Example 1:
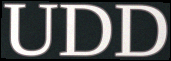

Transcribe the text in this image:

UDD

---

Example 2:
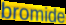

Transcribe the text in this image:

bromide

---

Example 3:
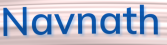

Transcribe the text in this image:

Navnath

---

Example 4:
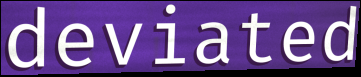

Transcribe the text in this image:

deviated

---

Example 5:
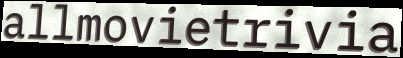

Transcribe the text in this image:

allmovietrivia